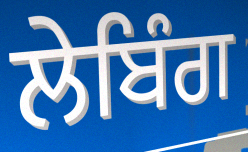
ਲੇਬਿੰਗ